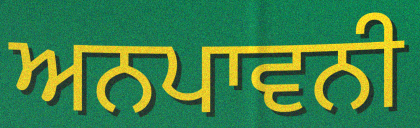
ਅਨਪਾਵਨੀ